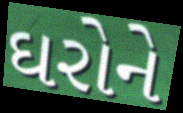
ઘરોને